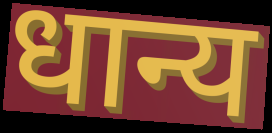
धान्य